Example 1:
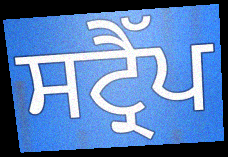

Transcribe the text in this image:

ਸਟ੍ਰੈੱਪ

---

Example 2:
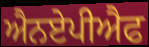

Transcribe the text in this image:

ਐਨਏਪੀਐਫ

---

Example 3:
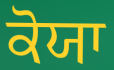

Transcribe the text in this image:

ਕੋਯਾ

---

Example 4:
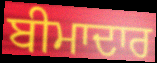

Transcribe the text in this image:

ਬੀਮਾਦਾਰ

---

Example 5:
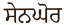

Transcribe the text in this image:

ਸੇਨਘੋਰ